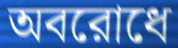
অবরোধে